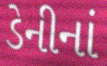
ડેનીનાં